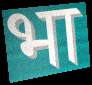
भा